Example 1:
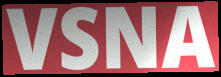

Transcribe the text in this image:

VSNA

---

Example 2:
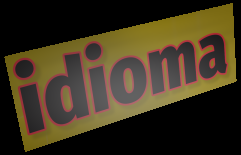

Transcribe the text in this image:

idioma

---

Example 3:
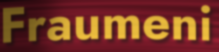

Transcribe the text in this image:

Fraumeni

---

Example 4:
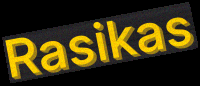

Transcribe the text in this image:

Rasikas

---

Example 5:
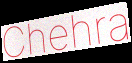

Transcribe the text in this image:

Chehra